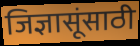
जिज्ञासूंसाठी